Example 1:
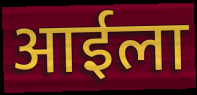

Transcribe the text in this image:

आईला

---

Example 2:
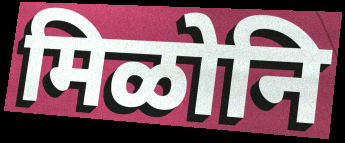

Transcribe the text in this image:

मिळोनि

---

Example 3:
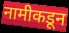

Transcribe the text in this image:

नामीकडून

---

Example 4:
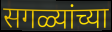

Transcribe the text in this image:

सगळ्यांच्या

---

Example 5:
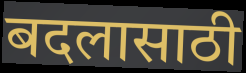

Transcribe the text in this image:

बदलासाठी